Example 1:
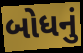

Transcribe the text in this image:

બોધનું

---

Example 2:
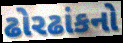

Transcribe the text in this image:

ઢોરઢાંકનો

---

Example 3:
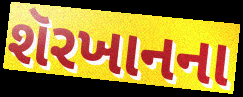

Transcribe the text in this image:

શૅરખાનના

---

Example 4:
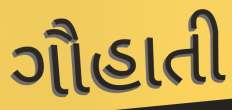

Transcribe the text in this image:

ગૌહાતી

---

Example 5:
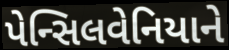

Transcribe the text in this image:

પેન્સિલવેનિયાને